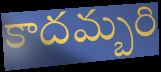
కాదమ్బరి